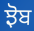
ਝੋਬ